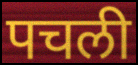
पचली